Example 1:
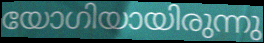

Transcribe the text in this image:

യോഗിയായിരുന്നു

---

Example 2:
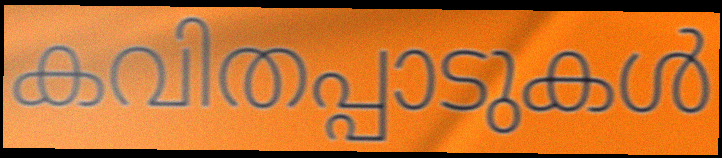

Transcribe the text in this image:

കവിതപ്പാടുകൾ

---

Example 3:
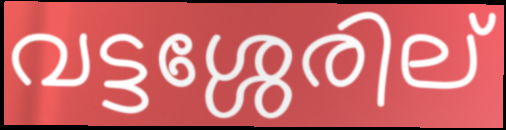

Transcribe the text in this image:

വട്ടശ്ശേരില്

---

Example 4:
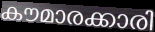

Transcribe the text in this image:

കൗമാരക്കാരി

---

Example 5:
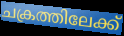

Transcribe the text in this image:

ചക്രത്തിലേക്ക്